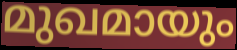
മുഖമായും